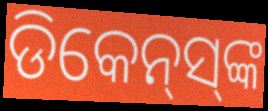
ଡିକେନ୍‌ସ୍‌ଙ୍କ